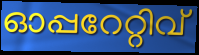
ഓപ്പറേറ്റിവ്